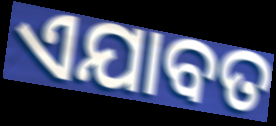
ଏଯାବତ